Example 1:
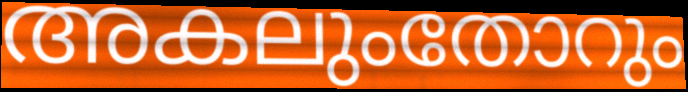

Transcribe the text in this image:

അകലുംതോറും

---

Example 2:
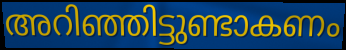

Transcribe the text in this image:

അറിഞ്ഞിട്ടുണ്ടാകണം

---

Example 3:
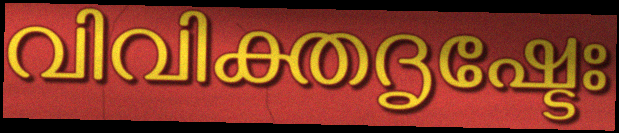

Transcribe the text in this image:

വിവിക്തദൃഷ്ടേഃ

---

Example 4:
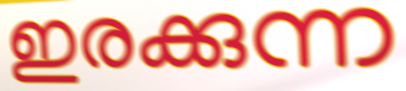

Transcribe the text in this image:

ഇരക്കുന്ന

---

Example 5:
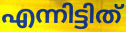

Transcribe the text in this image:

എന്നിട്ടിത്